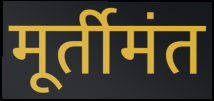
मूर्तीमंत